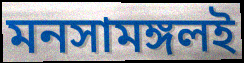
মনসামঙ্গলই